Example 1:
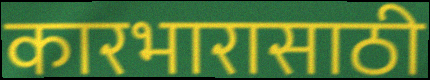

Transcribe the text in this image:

कारभारासाठी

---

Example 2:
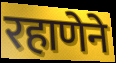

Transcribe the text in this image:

रहाणेने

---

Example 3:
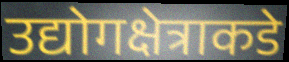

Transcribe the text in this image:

उद्योगक्षेत्राकडे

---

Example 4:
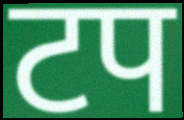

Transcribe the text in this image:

टप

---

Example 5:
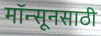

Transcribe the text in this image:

मॉन्सूनसाठी